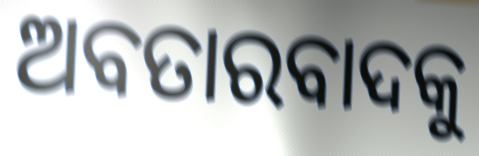
ଅବତାରବାଦକୁ